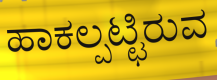
ಹಾಕಲ್ಪಟ್ಟಿರುವ